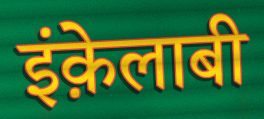
इंक़ेलाबी